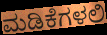
ಮಡಿಕೆಗಳಲಿ